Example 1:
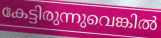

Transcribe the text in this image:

കേട്ടിരുന്നുവെങ്കിൽ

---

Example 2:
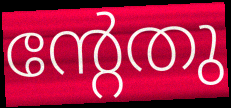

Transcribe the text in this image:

ന്റേതു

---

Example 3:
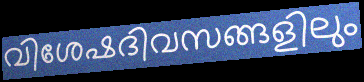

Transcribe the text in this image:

വിശേഷദിവസങ്ങളിലും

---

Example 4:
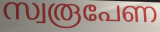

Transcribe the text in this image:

സ്വരൂപേണ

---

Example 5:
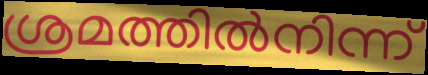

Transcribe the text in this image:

ശ്രമത്തിൽനിന്ന്